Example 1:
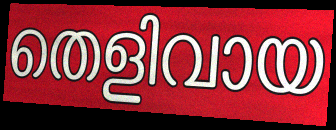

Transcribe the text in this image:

തെളിവായ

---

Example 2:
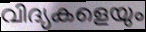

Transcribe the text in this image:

വിദ്യകളെയും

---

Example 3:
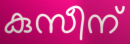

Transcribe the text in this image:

കുസീന്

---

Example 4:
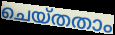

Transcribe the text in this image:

ചെയ്തതാം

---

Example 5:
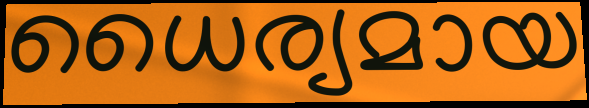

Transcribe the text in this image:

ധൈര്യമായ